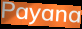
Payana